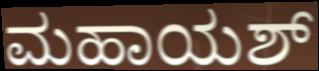
ಮಹಾಯಶ್